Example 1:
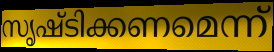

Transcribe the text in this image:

സൃഷ്ടിക്കണമെന്ന്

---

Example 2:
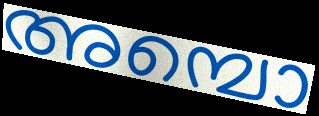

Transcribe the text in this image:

അമ്പൊ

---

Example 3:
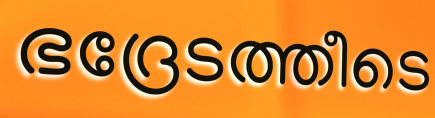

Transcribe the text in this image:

ഭദ്രേടത്തീടെ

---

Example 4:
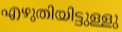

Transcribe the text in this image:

എഴുതിയിട്ടുള്ളു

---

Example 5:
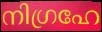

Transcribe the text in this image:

നിഗ്രഹേ